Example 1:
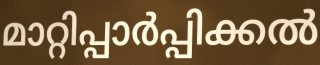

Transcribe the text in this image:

മാറ്റിപ്പാർപ്പിക്കൽ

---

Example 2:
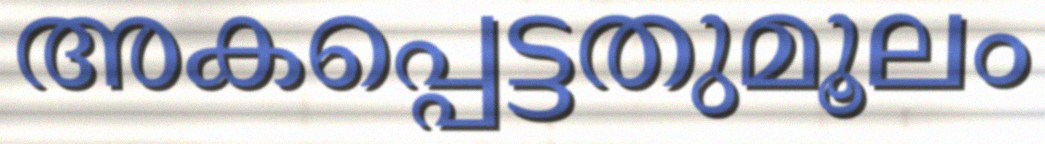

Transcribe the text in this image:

അകപ്പെട്ടതുമൂലം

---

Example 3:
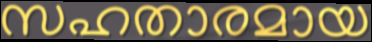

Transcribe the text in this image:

സഹതാരമായ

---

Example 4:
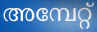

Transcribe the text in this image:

അമ്പേറ്റ്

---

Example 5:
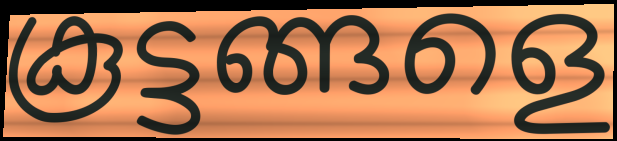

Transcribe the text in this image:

കൂട്ടങ്ങളെ